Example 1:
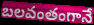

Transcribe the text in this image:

బలవంతంగానే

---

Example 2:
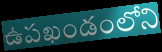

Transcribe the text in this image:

ఉపఖండంలోని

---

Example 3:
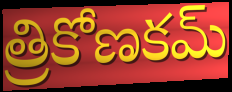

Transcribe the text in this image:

త్రికోణకమ్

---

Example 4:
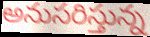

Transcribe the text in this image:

అనుసరిస్తున్న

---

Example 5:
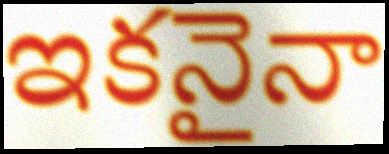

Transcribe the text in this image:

ఇకనైనా